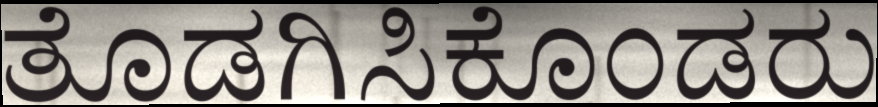
ತೊಡಗಿಸಿಕೊಂಡರು